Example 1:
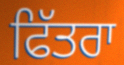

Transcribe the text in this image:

ਫਿੱਤਰਾ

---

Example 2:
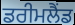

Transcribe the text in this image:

ਡਰੀਮਲੈਂਡ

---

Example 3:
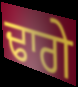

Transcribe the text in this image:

ਢਾਗੇ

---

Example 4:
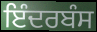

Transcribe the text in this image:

ਇੰਦਰਬੰਸ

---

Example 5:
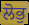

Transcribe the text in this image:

ਲੋਭੁ